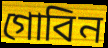
গোবিন